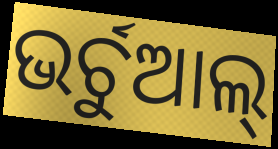
ଭର୍ଚୁଆଲ୍